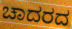
ಚಾದರದ